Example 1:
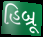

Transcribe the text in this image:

હિબ્રૂ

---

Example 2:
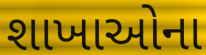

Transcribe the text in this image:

શાખાઓના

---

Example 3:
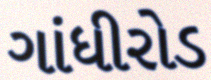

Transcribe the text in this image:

ગાંધીરોડ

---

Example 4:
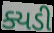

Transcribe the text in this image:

ક્યડી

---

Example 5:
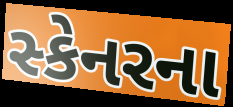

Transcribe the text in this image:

સ્કેનરના